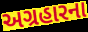
અગ્રહારના